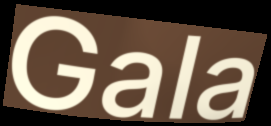
Gala